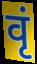
वृं